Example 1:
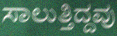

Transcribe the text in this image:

ಸಾಲುತ್ತಿದ್ದವು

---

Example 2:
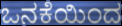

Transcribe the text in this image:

ಒನಕೆಯಿಂದ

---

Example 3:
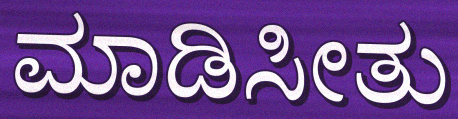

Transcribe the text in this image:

ಮಾಡಿಸೀತು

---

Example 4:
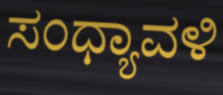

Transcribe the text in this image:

ಸಂಧ್ಯಾವಳಿ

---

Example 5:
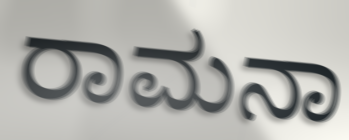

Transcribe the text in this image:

ರಾಮನಾ